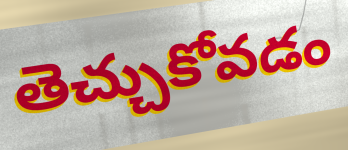
తెచ్చుకోవడం